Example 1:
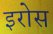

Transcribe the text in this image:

इरोस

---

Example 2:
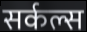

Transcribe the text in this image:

सर्कल्‍स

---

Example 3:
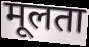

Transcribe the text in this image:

मूलता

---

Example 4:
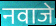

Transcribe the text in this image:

नवाजे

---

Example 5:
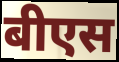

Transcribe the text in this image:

बीएस